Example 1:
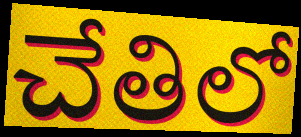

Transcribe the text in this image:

చేతిలో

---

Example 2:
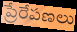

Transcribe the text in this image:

ప్రేరేపణలు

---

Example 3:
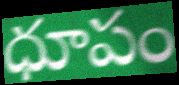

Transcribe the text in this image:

ధూపం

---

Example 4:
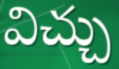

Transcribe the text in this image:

విచ్చు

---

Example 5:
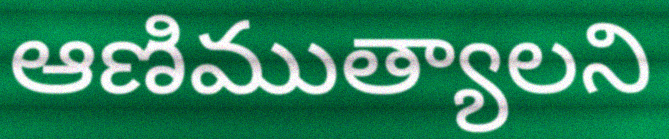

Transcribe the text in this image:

ఆణిముత్యాలని